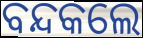
ବନ୍ଦକଲେ